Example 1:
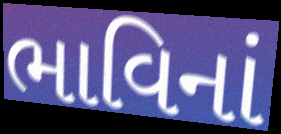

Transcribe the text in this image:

ભાવિનાં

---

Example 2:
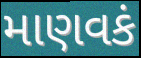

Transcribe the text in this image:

માણવકં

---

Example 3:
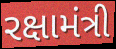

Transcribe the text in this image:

રક્ષામંત્રી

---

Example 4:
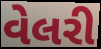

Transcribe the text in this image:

વેલરી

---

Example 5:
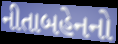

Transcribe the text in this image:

નીતાબહેનનો